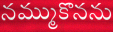
నమ్ముకొనను